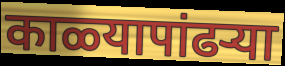
काळ्यापांढऱ्या